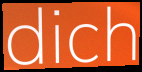
dich